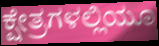
ಕ್ಷೇತ್ರಗಳಲ್ಲಿಯೂ